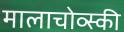
मालाचोव्स्की